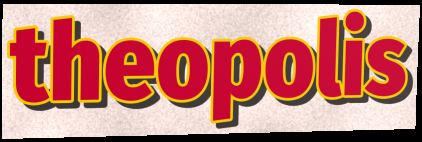
theopolis